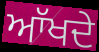
ਆੱਖਦੇ